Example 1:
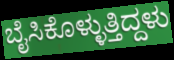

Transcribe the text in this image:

ಬೈಸಿಕೊಳ್ಳುತ್ತಿದ್ದಳು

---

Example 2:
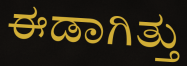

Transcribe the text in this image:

ಈಡಾಗಿತ್ತು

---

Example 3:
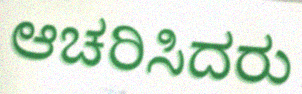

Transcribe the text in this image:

ಆಚರಿಸಿದರು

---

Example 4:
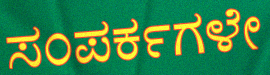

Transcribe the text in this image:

ಸಂಪರ್ಕಗಳೇ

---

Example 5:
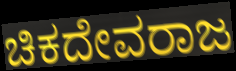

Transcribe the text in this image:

ಚಿಕದೇವರಾಜ